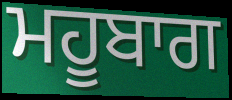
ਮਹੂਬਾਗ